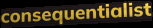
consequentialist